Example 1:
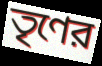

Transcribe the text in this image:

তৃণের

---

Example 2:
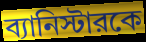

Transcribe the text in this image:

ব্যানিস্টারকে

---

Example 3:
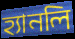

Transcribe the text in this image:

হ্যানলি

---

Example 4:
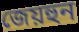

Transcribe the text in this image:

জেয়হুন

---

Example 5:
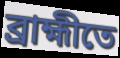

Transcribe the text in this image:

ব্রাহ্মীতে